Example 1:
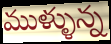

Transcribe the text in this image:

ముళ్ళున్న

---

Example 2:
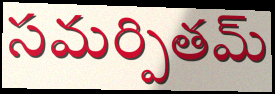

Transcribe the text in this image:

సమర్పితమ్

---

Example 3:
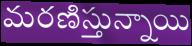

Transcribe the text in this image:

మరణిస్తున్నాయి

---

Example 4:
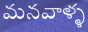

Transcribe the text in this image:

మనవాళ్ళ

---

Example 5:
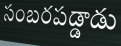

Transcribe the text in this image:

సంబరపడ్డాడు